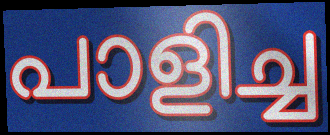
പാളിച്ച